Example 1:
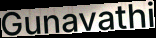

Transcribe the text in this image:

Gunavathi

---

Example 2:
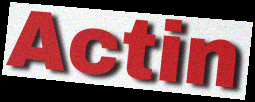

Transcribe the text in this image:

Actin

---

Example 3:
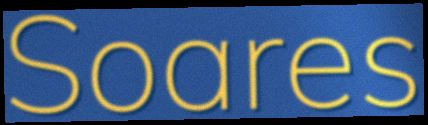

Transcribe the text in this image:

Soares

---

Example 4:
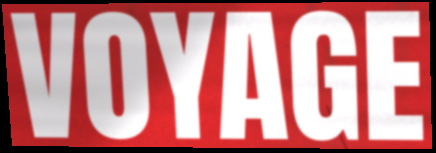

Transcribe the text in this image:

VOYAGE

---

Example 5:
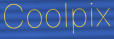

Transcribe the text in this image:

Coolpix